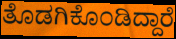
ತೊಡಗಿಕೊಂಡಿದ್ದಾರೆ